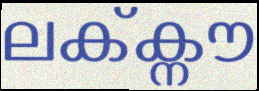
ലക്ക്നൗ